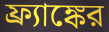
ফ্র্যাঙ্কের